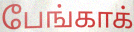
பேங்காக்